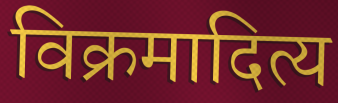
विक्रमादित्य